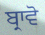
ਬ੍ਰਾਵੋ